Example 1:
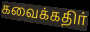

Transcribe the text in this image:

கவைக்கதிர்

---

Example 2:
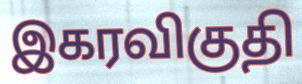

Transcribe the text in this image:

இகரவிகுதி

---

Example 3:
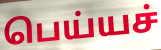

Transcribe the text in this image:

பெய்யச்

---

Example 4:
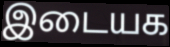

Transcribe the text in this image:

இடையக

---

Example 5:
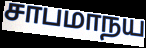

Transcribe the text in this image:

சாபமாநய